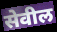
सेवील